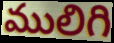
ములిగి